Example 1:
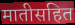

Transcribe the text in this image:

मातीसहित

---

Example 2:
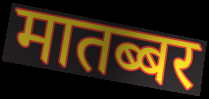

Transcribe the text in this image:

मातब्बर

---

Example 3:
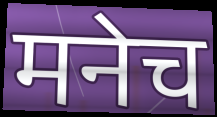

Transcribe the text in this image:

मनेच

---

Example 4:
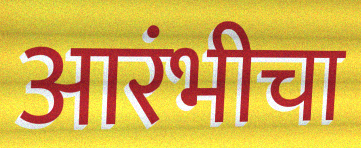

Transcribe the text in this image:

आरंभीचा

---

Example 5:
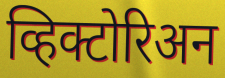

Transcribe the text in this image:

व्हिक्टोरिअन